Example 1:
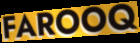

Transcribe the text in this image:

FAROOQ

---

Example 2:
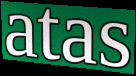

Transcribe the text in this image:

atas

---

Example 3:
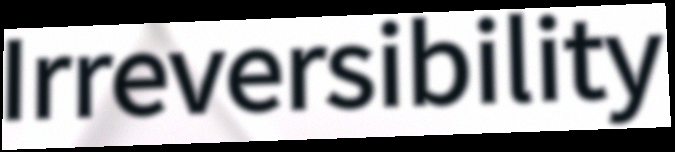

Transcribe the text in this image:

Irreversibility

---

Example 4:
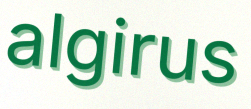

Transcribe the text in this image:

algirus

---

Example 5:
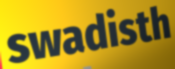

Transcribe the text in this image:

swadisth